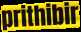
prithibir